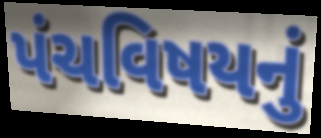
પંચવિષયનું